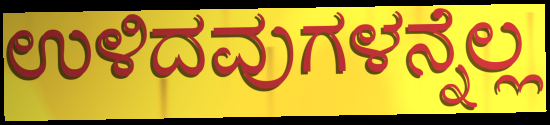
ಉಳಿದವುಗಳನ್ನೆಲ್ಲ